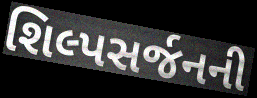
શિલ્પસર્જનની